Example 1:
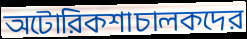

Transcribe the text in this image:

অটোরিকশাচালকদের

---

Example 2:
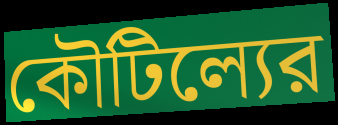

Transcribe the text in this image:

কৌটিল্যের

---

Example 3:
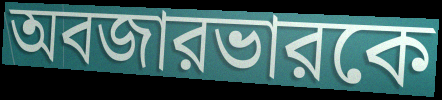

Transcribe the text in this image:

অবজারভারকে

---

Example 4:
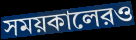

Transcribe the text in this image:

সময়কালেরও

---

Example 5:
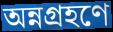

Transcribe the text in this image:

অন্নগ্রহণে